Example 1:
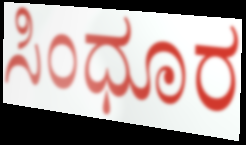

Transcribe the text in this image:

ಸಿಂಧೂರ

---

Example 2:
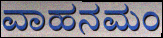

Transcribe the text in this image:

ವಾಹನಮಂ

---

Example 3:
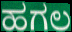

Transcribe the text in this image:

ಹಗಲ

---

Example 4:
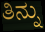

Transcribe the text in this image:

ತಿನ್ನು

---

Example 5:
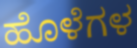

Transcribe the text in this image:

ಹೊಳೆಗಳ